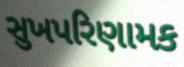
સુખપરિણામક